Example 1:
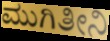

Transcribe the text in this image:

ಮುಗಿತೀನಿ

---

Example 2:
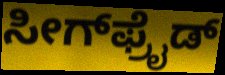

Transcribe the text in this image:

ಸೀಗ್‌ಫ್ರೈಡ್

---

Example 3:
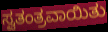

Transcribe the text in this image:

ಸ್ವತಂತ್ರವಾಯಿತು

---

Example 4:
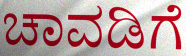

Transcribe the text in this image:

ಚಾವಡಿಗೆ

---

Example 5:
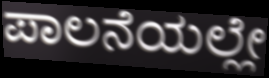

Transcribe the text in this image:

ಪಾಲನೆಯಲ್ಲೇ